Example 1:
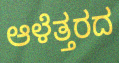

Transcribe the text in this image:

ಆಳೆತ್ತರದ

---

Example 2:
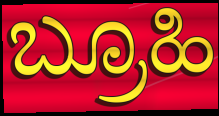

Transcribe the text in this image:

ಬ್ರೂಹಿ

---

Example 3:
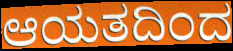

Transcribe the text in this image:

ಆಯತದಿಂದ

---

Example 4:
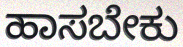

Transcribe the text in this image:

ಹಾಸಬೇಕು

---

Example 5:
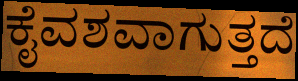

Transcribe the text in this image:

ಕೈವಶವಾಗುತ್ತದೆ